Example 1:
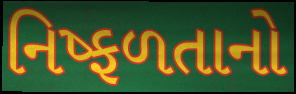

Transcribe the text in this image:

નિષ્ફળતાનો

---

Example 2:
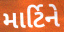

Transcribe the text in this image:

માર્ટિને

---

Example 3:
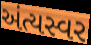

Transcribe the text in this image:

અંત્યસ્વર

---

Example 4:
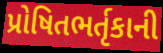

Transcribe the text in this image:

પ્રોષિતભર્તૃકાની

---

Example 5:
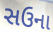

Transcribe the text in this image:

સઉના